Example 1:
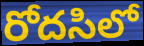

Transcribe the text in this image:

రోదసిలో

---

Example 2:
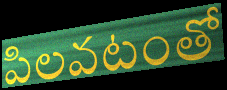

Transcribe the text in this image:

పిలవటంతో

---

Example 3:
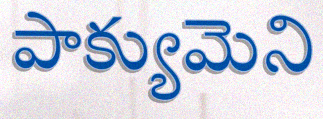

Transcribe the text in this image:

పాక్యుమెని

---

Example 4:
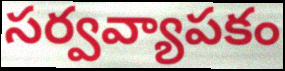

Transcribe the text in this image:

సర్వవ్యాపకం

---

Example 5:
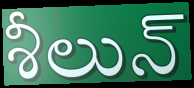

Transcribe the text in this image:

శీలున్